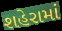
શહેરામાં